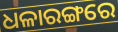
ଧଳାରଙ୍ଗରେ